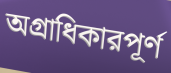
অগ্রাধিকারপূর্ণ